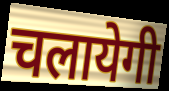
चलायेगी